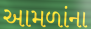
આમળાંના